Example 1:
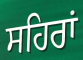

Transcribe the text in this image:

ਸਹਿਰਾਂ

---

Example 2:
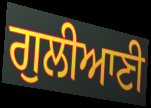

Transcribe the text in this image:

ਗੁਲੀਆਣੀ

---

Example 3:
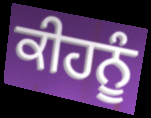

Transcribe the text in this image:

ਕੀਹਨੂੰ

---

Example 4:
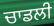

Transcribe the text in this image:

ਚਾਡਲੀ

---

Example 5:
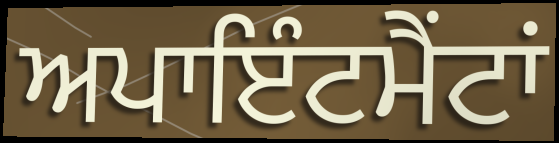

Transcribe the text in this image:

ਅਪਾਇੰਟਮੈਂਟਾਂ